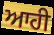
ਆਹੀ